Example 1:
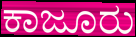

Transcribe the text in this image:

ಕಾಜೂರು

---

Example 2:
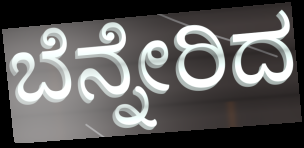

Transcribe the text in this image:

ಬೆನ್ನೇರಿದ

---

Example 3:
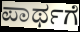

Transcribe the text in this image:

ಪಾರ್ಥಗೆ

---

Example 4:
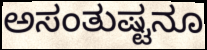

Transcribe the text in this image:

ಅಸಂತುಷ್ಟನೂ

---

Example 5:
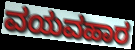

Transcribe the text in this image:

ವಯವಹಾರ